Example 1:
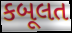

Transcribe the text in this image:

કબૂલત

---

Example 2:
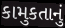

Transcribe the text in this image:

કામુકતાનું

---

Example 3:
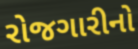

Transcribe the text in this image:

રોજગારીનો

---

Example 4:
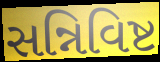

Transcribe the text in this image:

સન્નિવિષ્ટ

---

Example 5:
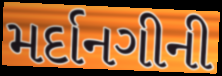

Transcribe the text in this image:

મર્દાનગીની